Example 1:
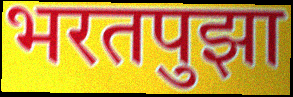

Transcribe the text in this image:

भरतपुझा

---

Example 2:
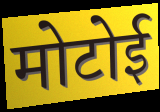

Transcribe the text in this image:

मोटोई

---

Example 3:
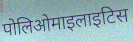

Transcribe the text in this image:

पोलिओमाइलाइटिस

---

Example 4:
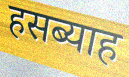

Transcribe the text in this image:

हसब्याह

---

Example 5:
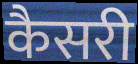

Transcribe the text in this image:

कैसरी